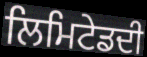
ਲਿਮਿਟੇਡਦੀ